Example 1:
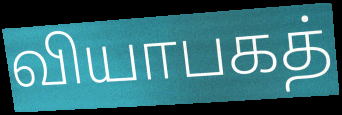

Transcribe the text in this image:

வியாபகத்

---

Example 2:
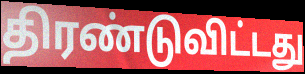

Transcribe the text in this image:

திரண்டுவிட்டது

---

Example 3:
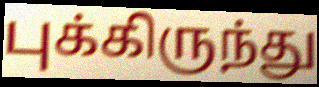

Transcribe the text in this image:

புக்கிருந்து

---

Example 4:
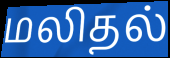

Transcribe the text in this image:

மலிதல்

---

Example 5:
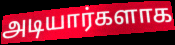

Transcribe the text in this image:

அடியார்களாக